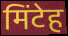
मिंटेह